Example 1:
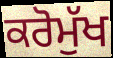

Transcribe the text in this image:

ਕਰੋਮੁੱਖ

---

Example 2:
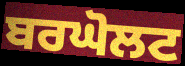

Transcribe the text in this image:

ਬਰਘੋਲਟ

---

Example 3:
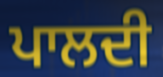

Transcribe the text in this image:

ਪਾਲਦੀ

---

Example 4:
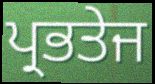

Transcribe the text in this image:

ਪ੍ਰਭਤੇਜ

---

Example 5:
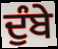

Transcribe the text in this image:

ਦੁੰਬੇ